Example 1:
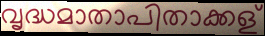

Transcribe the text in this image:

വൃദ്ധമാതാപിതാക്കള്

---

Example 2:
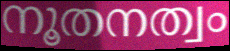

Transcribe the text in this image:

നൂതനത്വം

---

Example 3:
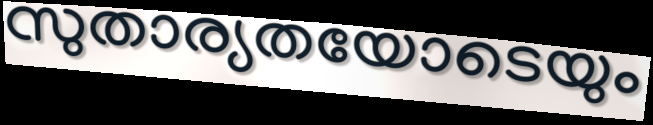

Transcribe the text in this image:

സുതാര്യതയോടെയും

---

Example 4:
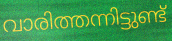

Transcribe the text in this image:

വാരിത്തന്നിട്ടുണ്ട്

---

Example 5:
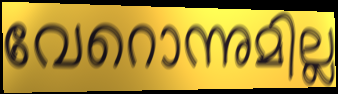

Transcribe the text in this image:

വേറൊന്നുമില്ല